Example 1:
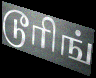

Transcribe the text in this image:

டூரிங்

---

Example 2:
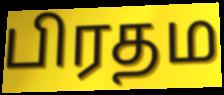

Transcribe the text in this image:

பிரதம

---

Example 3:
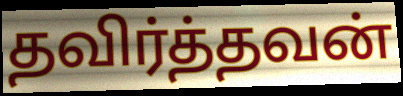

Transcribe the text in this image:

தவிர்த்தவன்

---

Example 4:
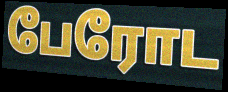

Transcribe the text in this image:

பேரோட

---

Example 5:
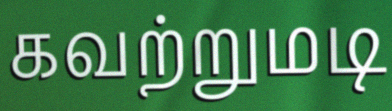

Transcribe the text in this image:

கவற்றுமடி